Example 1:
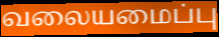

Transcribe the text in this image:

வலையமைப்பு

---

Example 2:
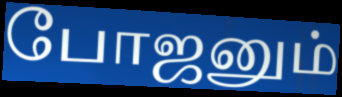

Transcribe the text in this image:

போஜனும்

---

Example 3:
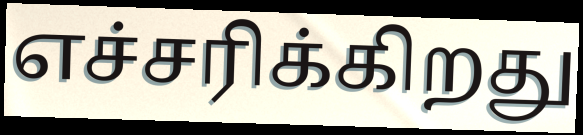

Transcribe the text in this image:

எச்சரிக்கிறது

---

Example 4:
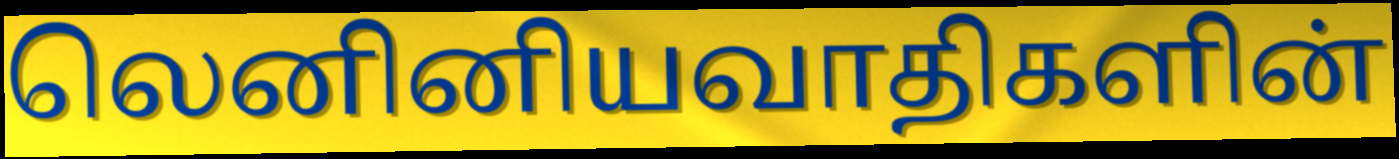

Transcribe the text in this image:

லெனினியவாதிகளின்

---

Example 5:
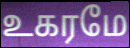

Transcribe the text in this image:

உகரமே